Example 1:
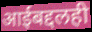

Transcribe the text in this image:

आईबद्दलही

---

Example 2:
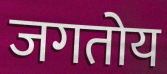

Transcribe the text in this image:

जगतोय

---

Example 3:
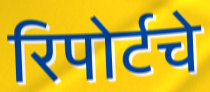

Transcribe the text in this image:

रिपोर्टचे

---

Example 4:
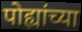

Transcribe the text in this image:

पोह्यांच्या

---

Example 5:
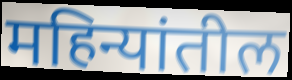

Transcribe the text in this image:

महिन्यांतील